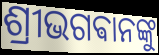
ଶ୍ରୀଭଗଵାନଙ୍କୁ